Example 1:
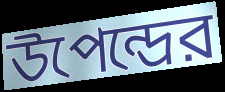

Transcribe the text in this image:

উপেন্দ্রের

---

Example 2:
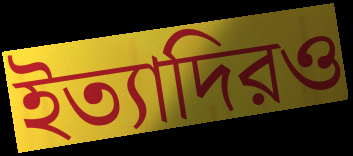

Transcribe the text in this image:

ইত্যাদিরও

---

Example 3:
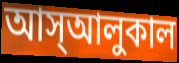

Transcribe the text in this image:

আস্আলুকাল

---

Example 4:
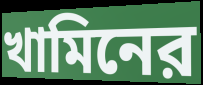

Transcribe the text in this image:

খামিনের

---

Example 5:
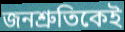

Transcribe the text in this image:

জনশ্রুতিকেই